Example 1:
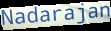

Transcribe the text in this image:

Nadarajan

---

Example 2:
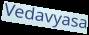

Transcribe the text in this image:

Vedavyasa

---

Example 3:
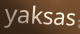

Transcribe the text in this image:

yaksas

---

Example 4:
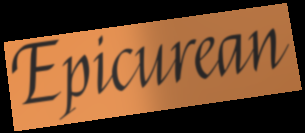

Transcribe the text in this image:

Epicurean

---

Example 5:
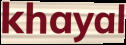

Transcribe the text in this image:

khayal